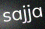
sajja